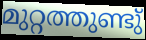
മുറ്റത്തുണ്ടു്